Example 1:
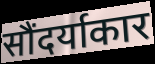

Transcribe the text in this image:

सौंदर्याकार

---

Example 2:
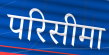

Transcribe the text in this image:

परिसीमा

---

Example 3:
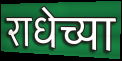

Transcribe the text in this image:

राधेच्या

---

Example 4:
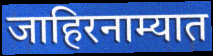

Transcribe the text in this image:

जाहिरनाम्यात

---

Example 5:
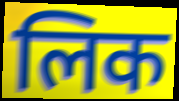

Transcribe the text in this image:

लिक